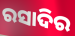
ରସାଦିର